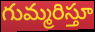
గుమ్మరిస్తూ